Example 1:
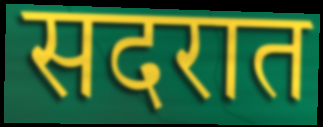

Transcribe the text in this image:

सदरात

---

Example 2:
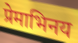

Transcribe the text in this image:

प्रेमाभिनय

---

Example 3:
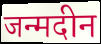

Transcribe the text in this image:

जन्मदीन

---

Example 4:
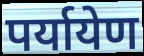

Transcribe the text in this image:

पर्यायेण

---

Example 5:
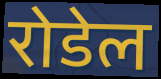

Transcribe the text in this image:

रोडेल